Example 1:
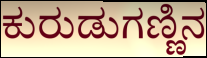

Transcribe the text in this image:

ಕುರುಡುಗಣ್ಣಿನ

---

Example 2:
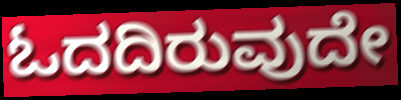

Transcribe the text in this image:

ಓದದಿರುವುದೇ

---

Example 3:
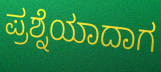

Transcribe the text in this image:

ಪ್ರಶ್ನೆಯಾದಾಗ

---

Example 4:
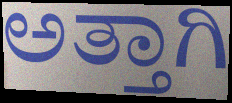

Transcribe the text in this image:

ಅತ್ತಾಗಿ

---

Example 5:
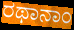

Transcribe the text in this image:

ರಥಾನಾಂ